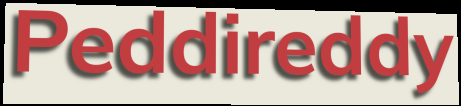
Peddireddy